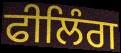
ਫੀਲਿੰਗ